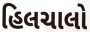
હિલચાલો